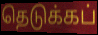
தெடுக்கப்